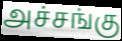
அச்சங்கு